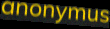
anonymus